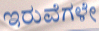
ಇರುವೆಗಳೇ